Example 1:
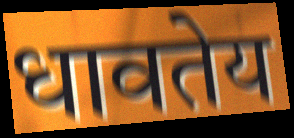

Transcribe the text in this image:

धावतेय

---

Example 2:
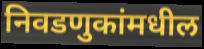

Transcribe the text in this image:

निवडणुकांमधील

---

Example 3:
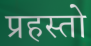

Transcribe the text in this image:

प्रहस्तो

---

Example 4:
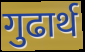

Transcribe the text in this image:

गुढार्थ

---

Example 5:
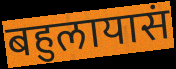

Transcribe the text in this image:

बहुलायासं